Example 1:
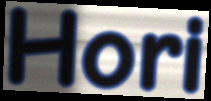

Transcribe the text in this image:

Hori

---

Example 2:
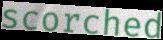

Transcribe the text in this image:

scorched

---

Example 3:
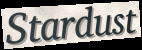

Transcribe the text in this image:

Stardust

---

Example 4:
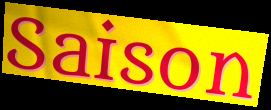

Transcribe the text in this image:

Saison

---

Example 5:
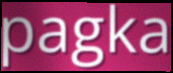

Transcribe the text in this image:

pagka